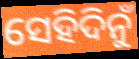
ସେହିଦିନୁଁ